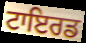
ਟਾਇਰਡ